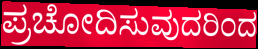
ಪ್ರಚೋದಿಸುವುದರಿಂದ